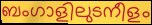
ബംഗാളിലുടനീളം